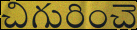
చిగురించె